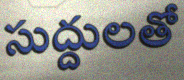
సుద్దులతో